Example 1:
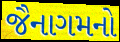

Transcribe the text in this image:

જૈનાગમનો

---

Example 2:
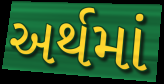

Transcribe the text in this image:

અર્થમાં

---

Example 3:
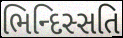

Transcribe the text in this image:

ભિન્દિસ્સતિ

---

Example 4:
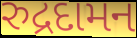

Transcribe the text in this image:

રુદ્રદામન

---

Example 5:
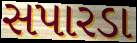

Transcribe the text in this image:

સપારડા